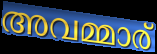
അവമ്മാര്